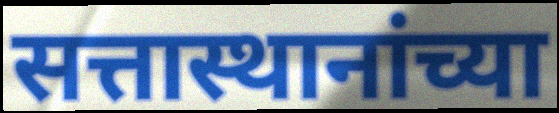
सत्तास्थानांच्या